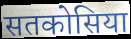
सतकोसिया